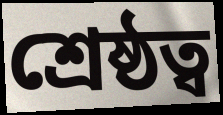
শ্ৰেষ্ঠত্ব